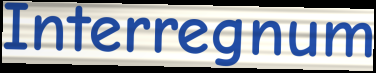
Interregnum